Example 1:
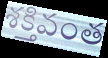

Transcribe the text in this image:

శక్తివంత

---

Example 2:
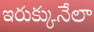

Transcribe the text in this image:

ఇరుక్కునేలా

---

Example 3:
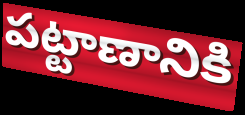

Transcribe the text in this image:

పట్టాణానికి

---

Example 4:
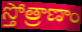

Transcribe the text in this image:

స్తోత్రాణాం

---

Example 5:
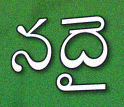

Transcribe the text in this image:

నదై